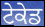
ਟੇਕੇਡ